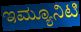
ಇಮ್ಯೂನಿಟಿ